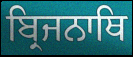
ਬ੍ਰਿਜਨਾਥਿ